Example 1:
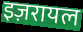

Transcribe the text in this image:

इज़रायल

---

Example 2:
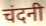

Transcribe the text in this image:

चंदनी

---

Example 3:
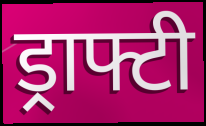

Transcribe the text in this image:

ड्राफ्टी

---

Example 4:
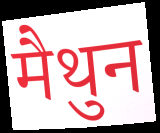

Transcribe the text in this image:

मैथुन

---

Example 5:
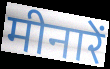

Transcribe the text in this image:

मीनारें